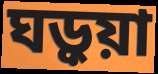
ঘড়ুয়া